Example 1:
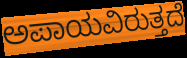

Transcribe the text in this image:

ಅಪಾಯವಿರುತ್ತದೆ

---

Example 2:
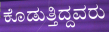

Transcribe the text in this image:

ಕೊಡುತ್ತಿದ್ದವರು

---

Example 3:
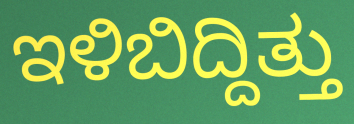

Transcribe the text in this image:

ಇಳಿಬಿದ್ದಿತ್ತು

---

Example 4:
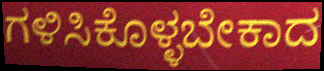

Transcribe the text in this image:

ಗಳಿಸಿಕೊಳ್ಳಬೇಕಾದ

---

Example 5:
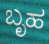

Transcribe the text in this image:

ಬೃಹ